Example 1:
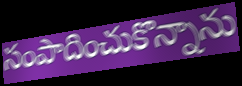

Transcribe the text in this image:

సంపాదించుకొన్నాను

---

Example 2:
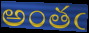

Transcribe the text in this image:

అంతఁ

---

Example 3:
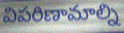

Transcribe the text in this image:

విపరిణామాల్ని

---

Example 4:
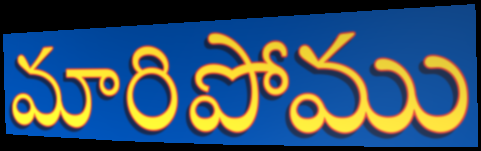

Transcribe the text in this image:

మారిపోము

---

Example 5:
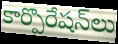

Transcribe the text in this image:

కార్పొరేషన్‌లు